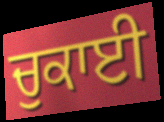
ਚੁਕਾਈ